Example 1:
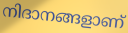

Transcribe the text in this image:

നിദാനങ്ങളാണ്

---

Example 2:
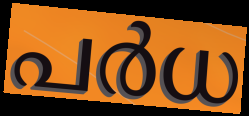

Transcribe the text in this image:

പർധ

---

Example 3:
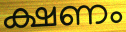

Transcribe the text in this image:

ക്ഷണം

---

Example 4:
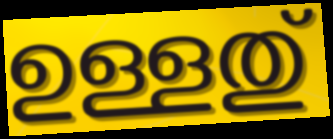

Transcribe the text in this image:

ഉള്ളതു്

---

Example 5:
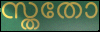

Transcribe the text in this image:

സ്തതോ